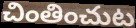
చింతించుట